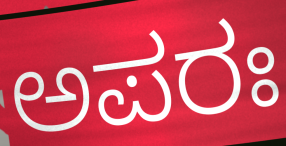
ಅಪರಃ